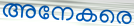
അനേകരെ